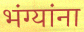
भंग्यांना